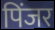
पिंजर